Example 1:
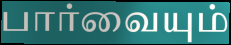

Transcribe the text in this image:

பார்வையும்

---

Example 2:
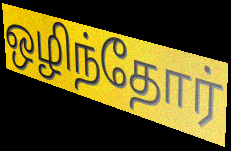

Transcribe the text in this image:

ஒழிந்தோர்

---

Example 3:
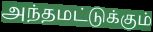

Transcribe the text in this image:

அந்தமட்டுக்கும்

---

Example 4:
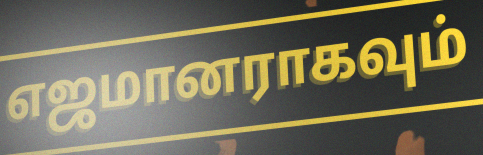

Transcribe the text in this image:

எஜமானராகவும்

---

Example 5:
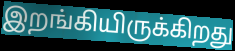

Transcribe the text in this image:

இறங்கியிருக்கிறது